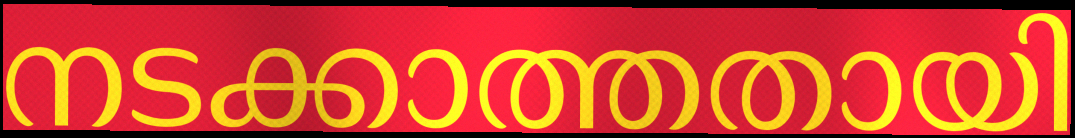
നടക്കാത്തതായി